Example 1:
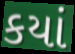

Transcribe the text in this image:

કયાં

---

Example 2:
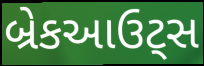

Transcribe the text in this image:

બ્રેકઆઉટ્સ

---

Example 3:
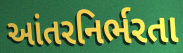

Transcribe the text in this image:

આંતરનિર્ભરતા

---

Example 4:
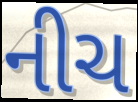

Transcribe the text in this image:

નીચ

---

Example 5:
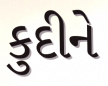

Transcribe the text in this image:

કુદીને